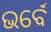
ଭର୍ବେ